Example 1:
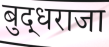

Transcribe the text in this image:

बुद्धराजा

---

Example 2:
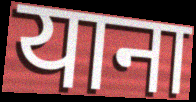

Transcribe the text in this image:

याना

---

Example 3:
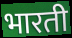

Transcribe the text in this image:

भारती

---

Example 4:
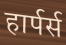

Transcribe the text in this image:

हार्पर्स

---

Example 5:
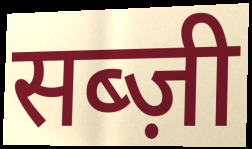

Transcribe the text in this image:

सब्ज़ी